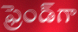
ఫ్రెండ్‌గా